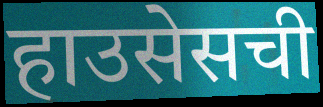
हाउसेसची